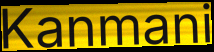
Kanmani